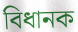
বিধানক